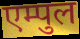
एम्पुल